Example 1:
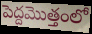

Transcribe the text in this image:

పెద్దమొత్తంలో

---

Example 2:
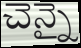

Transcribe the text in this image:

చెన్నై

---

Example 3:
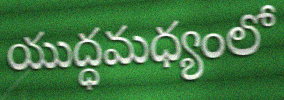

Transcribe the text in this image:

యుద్ధమధ్యంలో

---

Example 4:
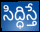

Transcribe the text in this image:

సిద్ధిస్తే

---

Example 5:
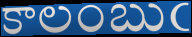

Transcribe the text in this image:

కాలంబుఁ